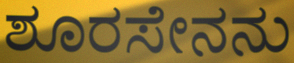
ಶೂರಸೇನನು